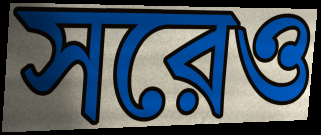
সরেও